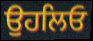
ਉਹਲਿਓ